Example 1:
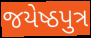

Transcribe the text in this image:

જયેષ્ઠપુત્ર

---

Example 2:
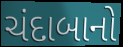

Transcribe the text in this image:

ચંદાબાનો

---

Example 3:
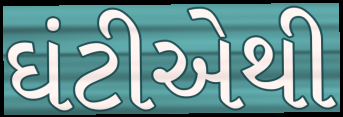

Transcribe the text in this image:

ઘંટીએથી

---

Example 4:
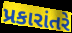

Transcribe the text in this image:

પ્રકારાંતરે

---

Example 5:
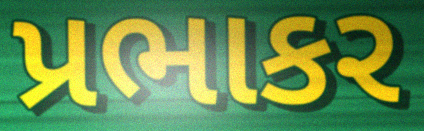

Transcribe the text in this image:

પ્રભાકર